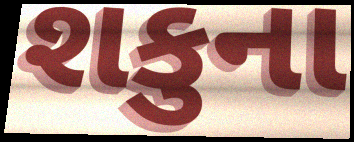
શકુના